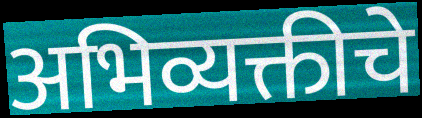
अभिव्यक्तीचे